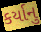
કર્યાનુ